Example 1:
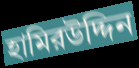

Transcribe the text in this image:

হামিরউদ্দিন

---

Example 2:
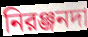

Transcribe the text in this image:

নিরঞ্জনদা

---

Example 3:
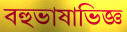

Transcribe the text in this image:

বহুভাষাভিজ্ঞ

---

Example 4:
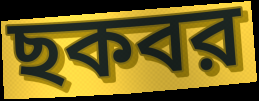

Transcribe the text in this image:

ছকবর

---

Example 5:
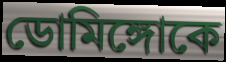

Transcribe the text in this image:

ডোমিঙ্গোকে